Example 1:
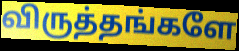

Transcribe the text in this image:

விருத்தங்களே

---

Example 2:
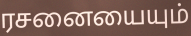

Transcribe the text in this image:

ரசனையையும்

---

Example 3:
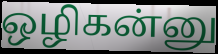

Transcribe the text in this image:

ஒழிகன்னு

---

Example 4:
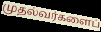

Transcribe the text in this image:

முதல்வர்களைப்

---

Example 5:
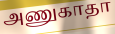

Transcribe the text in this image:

அணுகாதா